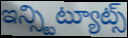
ఇన్స్టిట్యూట్స్